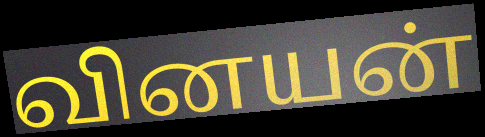
வினயன்